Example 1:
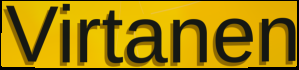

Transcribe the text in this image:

Virtanen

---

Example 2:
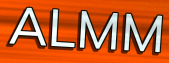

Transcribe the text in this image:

ALMM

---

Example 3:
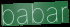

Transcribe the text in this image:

babar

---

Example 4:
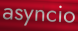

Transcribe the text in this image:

asyncio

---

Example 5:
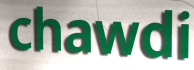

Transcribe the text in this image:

chawdi